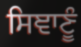
ਸਿਞਾਣੂੰ